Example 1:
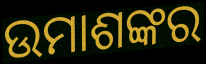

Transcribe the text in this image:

ଉମାଶଙ୍କର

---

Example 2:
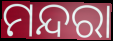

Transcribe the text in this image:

ମନ୍ଦରା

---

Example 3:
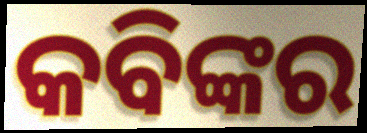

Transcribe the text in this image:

କବିଙ୍କର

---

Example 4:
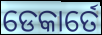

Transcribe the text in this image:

ଡେକାର୍ତେ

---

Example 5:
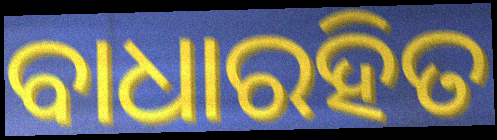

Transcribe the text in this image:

ବାଧାରହିତ